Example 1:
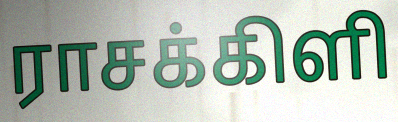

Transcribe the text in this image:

ராசக்கிளி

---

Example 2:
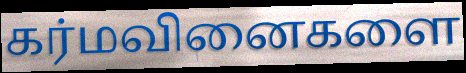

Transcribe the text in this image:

கர்மவினைகளை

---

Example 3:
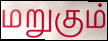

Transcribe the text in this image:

மறுகும்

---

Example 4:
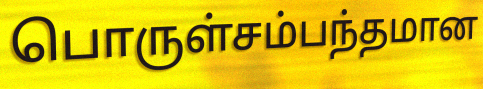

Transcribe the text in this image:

பொருள்சம்பந்தமான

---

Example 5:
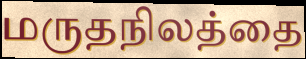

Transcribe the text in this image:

மருதநிலத்தை